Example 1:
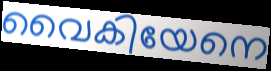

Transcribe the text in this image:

വൈകിയേനെ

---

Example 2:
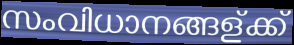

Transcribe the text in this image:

സംവിധാനങ്ങള്ക്ക്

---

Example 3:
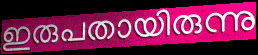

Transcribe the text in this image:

ഇരുപതായിരുന്നു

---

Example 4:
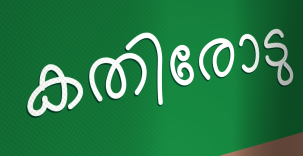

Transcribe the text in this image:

കതിരോടു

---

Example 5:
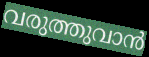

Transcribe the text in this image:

വരുത്തുവാൻ